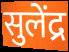
सुलेंद्र